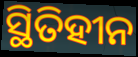
ସ୍ଥିତିହୀନ